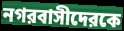
নগরবাসীদেরকে